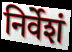
निर्वेशं